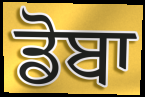
ਡੋਬਾ